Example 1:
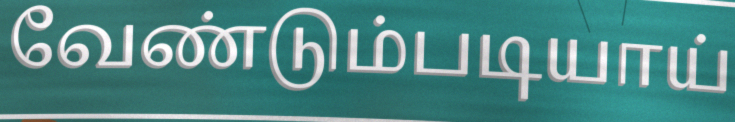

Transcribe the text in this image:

வேண்டும்படியாய்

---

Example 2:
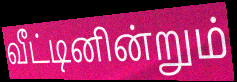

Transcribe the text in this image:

வீட்டினின்றும்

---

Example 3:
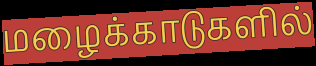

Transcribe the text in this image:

மழைக்காடுகளில்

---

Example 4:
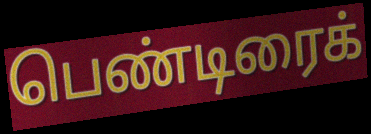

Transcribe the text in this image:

பெண்டிரைக்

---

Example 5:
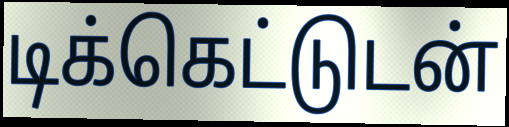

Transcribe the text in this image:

டிக்கெட்டுடன்